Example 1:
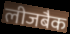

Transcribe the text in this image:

लीजबैक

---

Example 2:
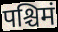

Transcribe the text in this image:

पश्चिमं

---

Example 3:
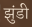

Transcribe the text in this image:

झुंडी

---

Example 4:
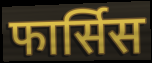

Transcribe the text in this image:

फार्सिस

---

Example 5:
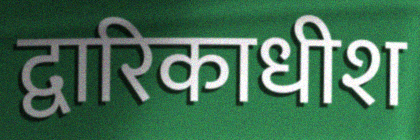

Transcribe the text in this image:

द्वारिकाधीश